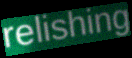
relishing